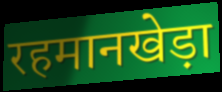
रहमानखेड़ा